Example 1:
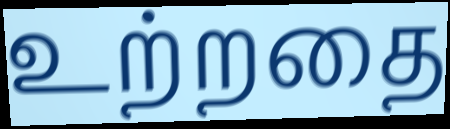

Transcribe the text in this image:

உற்றதை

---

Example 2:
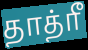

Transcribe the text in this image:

தாத்ரீ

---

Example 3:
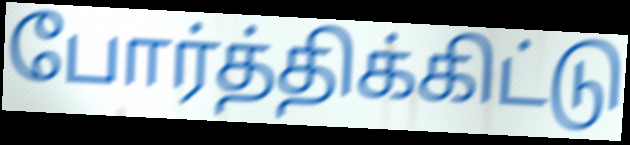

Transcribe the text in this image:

போர்த்திக்கிட்டு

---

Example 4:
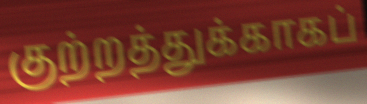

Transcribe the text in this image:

குற்றத்துக்காகப்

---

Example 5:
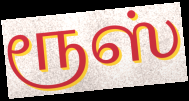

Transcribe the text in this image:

ரூஸ்